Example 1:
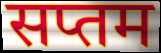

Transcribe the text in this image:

सप्तम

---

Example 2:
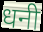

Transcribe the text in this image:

धनी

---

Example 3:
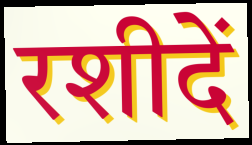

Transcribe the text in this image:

रशीदें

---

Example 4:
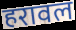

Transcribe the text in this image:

हरावल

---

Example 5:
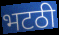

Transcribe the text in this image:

भटठी